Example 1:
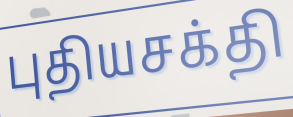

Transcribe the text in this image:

புதியசக்தி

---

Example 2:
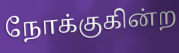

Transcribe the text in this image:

நோக்குகின்ற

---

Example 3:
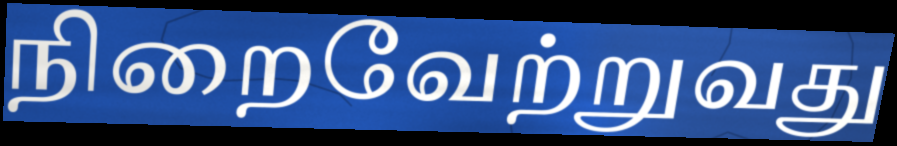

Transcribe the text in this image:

நிறைவேற்றுவது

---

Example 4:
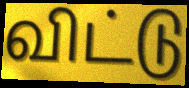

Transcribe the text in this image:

விட்டு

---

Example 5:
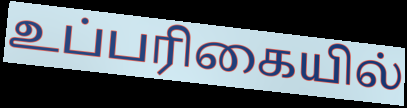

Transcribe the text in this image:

உப்பரிகையில்